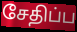
சேதிப்ப